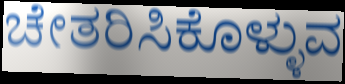
ಚೇತರಿಸಿಕೊಳ್ಳುವ